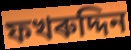
ফখৰুদ্দিন